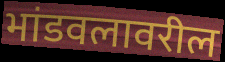
भांडवलावरील